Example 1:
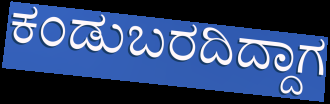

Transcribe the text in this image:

ಕಂಡುಬರದಿದ್ದಾಗ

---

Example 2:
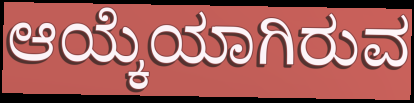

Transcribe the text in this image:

ಆಯ್ಕೆಯಾಗಿರುವ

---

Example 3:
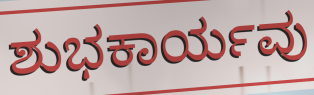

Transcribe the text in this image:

ಶುಭಕಾರ್ಯವು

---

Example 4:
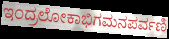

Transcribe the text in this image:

ಇಂದ್ರಲೋಕಾಭಿಗಮನಪರ್ವಣಿ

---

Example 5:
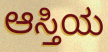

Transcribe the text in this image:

ಆಸ್ತಿಯ